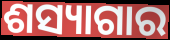
ଶସ୍ୟାଗାର